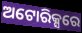
ଅଟୋରିକ୍ସରେ